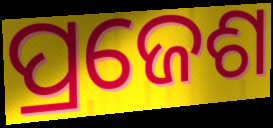
ପ୍ରଜେଶ